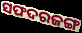
ସଫଦରଜଙ୍ଗ